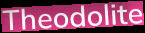
Theodolite